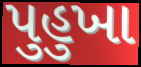
પુહુખા